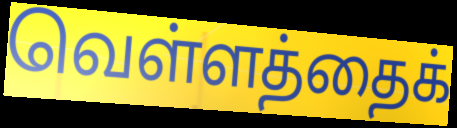
வெள்ளத்தைக்